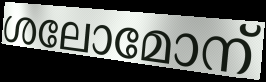
ശലോമോന്